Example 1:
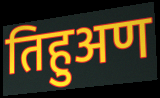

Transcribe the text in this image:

तिहुअण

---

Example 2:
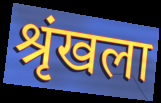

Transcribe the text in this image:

श्रृंखला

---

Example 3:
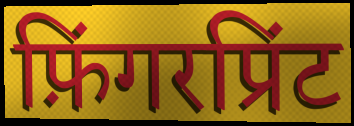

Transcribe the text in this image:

फ़िंगरप्रिंट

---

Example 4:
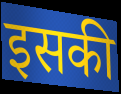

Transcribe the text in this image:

इसकी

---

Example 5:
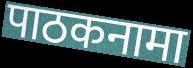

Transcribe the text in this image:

पाठकनामा